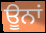
ਊਨਾਂ